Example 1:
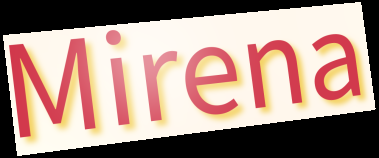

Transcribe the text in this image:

Mirena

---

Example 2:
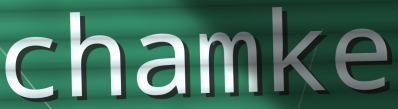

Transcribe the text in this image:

chamke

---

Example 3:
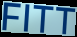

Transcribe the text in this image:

FITT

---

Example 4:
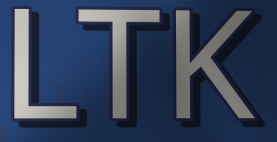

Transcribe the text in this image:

LTK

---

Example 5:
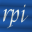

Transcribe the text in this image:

rpi